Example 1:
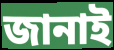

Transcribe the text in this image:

জানাই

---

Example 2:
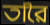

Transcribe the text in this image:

তাৱৈ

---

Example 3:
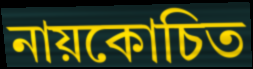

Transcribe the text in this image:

নায়কোচিত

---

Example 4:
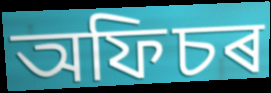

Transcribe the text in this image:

অফিচৰ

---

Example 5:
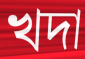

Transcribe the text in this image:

খদা